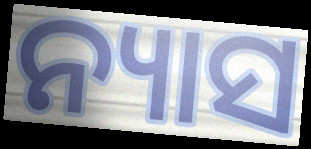
ନ୍ୟାସ